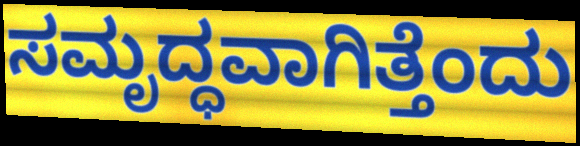
ಸಮೃದ್ಧವಾಗಿತ್ತೆಂದು